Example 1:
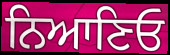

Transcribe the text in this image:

ਨਿਆਣਿਓ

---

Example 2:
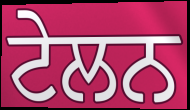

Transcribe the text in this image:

ਟੇਲਨ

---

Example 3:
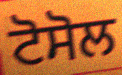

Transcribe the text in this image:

ਟੋਸੋਲ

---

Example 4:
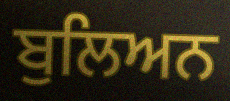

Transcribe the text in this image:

ਬੁਲਿਅਨ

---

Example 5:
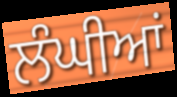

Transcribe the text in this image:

ਲੰਘੀਆਂ